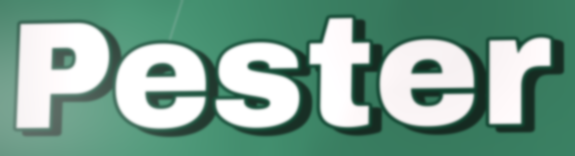
Pester